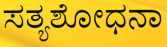
ಸತ್ಯಶೋಧನಾ